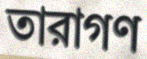
তারাগণ